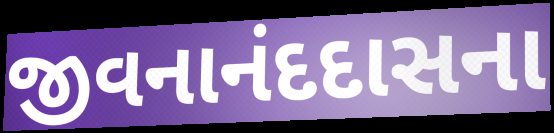
જીવનાનંદદાસના